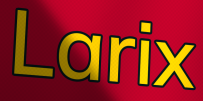
Larix